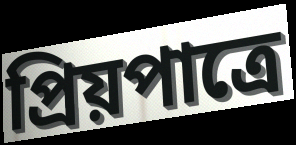
প্রিয়পাত্রে